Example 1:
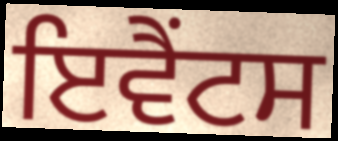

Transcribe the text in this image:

ਇਵੈਂਟਸ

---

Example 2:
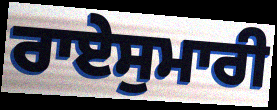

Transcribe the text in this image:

ਰਾਏਸੁਮਾਰੀ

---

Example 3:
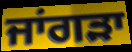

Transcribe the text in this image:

ਜਾਂਗੜਾ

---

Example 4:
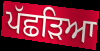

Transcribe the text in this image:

ਪੱਛੜਿਆ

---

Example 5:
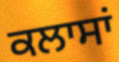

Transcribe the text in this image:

ਕਲਾਸਾਂ